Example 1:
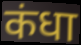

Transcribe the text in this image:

कंधा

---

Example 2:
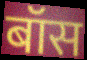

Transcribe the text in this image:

बॉस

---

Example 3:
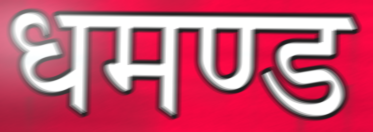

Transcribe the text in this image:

धमण्ड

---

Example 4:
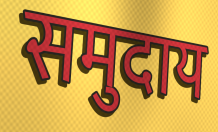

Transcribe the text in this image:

समुदाय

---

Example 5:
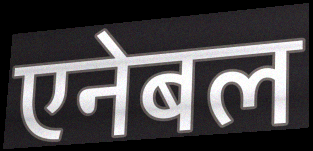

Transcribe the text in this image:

एनेबल